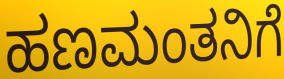
ಹಣಮಂತನಿಗೆ